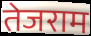
तेजराम